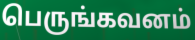
பெருங்கவனம்